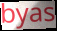
byas